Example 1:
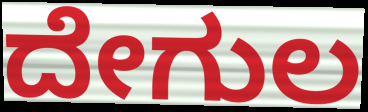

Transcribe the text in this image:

ದೇಗುಲ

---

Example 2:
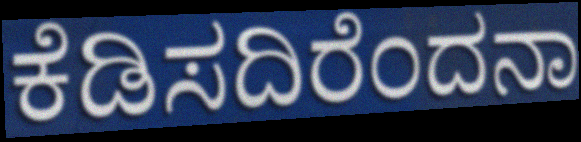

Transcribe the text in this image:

ಕೆಡಿಸದಿರೆಂದನಾ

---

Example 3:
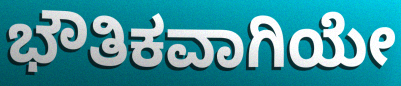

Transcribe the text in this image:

ಭೌತಿಕವಾಗಿಯೇ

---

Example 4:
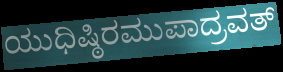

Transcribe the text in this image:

ಯುಧಿಷ್ಠಿರಮುಪಾದ್ರವತ್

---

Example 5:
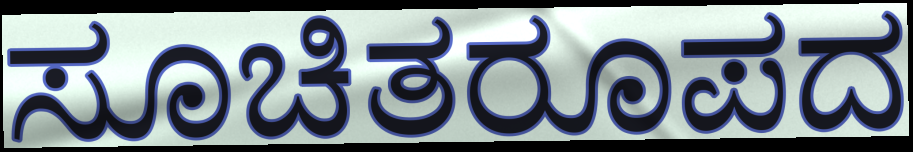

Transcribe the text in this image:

ಸೂಚಿತರೂಪದ